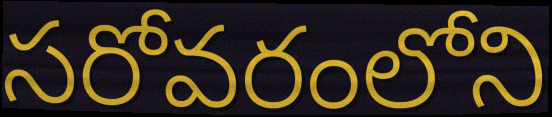
సరోవరంలోని